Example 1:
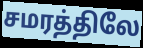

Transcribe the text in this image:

சமரத்திலே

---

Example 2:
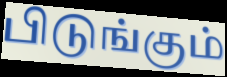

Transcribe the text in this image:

பிடுங்கும்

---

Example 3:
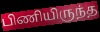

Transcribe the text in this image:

பிணியிருந்த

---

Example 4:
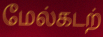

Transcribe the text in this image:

மேல்கடற்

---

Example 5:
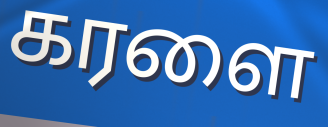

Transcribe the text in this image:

கரளை